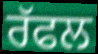
ਰੱਫਲ